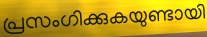
പ്രസംഗിക്കുകയുണ്ടായി